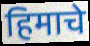
हिमाचे